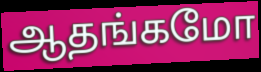
ஆதங்கமோ